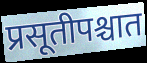
प्रसूतीपश्चात